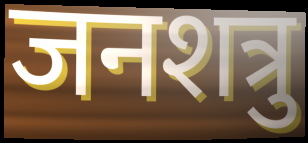
जनशत्रु